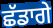
ਛੱਡਾਗੇ